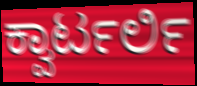
ಕ್ವಾರ್ಟರ್ಲಿ